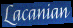
Lacanian